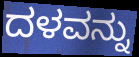
ದಳವನ್ನು